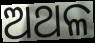
ଅଥଳ